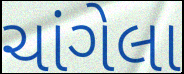
ચાંગેલા